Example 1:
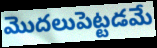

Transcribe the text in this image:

మొదలుపెట్టడమే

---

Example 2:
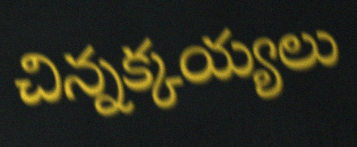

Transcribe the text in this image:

చిన్నక్కయ్యలు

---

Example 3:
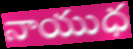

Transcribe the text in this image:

నాయుధ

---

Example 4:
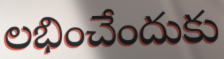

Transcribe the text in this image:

లభించేందుకు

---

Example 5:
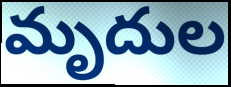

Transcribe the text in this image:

మృదుల